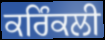
ਕਰਿੰਕਲੀ